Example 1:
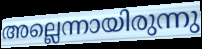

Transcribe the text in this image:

അല്ലെന്നായിരുന്നു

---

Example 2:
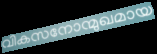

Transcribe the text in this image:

വികസനോന്മുഖമായ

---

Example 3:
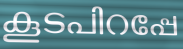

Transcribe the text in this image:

കൂടപിറപ്പേ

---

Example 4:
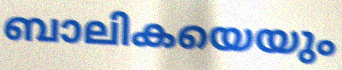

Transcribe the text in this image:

ബാലികയെയും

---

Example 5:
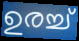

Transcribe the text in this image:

ഉരച്ച്